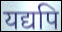
यद्यपि